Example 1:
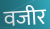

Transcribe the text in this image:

वजीर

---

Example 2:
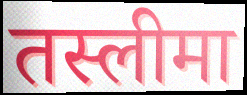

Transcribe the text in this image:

तस्लीमा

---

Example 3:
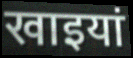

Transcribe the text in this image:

खाइयां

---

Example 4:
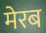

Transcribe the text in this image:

मेरब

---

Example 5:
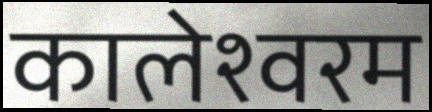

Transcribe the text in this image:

कालेश्वरम